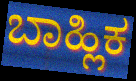
ಬಾಹ್ಲಿಕ